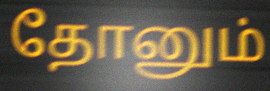
தோனும்